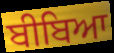
ਬੀਬਿਆ